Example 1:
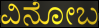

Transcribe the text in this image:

ವಿನೋಬ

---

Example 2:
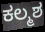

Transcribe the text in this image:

ಕಲ್ಮಶ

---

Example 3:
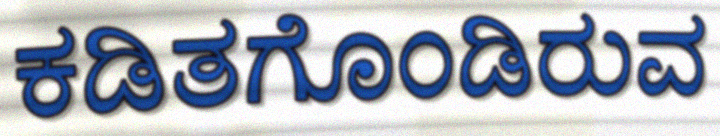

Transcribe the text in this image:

ಕಡಿತಗೊಂಡಿರುವ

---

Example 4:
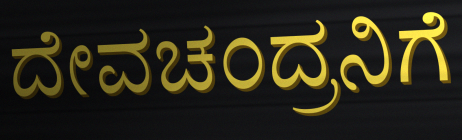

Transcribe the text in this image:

ದೇವಚಂದ್ರನಿಗೆ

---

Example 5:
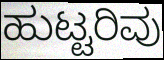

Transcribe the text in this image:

ಹುಟ್ಟರಿವು